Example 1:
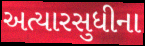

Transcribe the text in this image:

અત્યારસુધીના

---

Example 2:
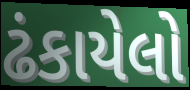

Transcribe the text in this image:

ઢંકાયેલો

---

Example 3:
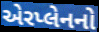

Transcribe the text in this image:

એરપ્લેનનો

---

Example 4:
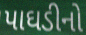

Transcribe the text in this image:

પાઘડીનો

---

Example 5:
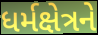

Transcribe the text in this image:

ધર્મક્ષેત્રને